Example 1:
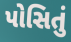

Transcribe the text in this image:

પોસિતું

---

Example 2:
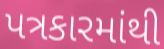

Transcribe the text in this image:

પત્રકારમાંથી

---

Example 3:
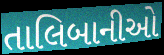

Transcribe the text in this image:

તાલિબાનીઓ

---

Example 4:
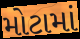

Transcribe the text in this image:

મોટામાં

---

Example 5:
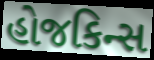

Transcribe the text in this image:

હોજકિન્સ